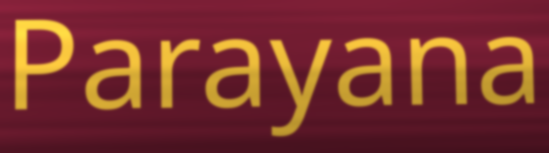
Parayana